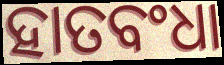
ହାତବଂଧା